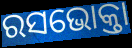
ରସଭୋକ୍ତା